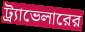
ট্র্যাভেলারের